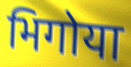
भिगोया